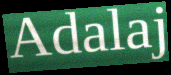
Adalaj